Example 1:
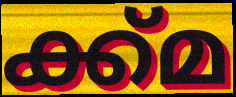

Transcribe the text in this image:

ക്ക്മ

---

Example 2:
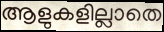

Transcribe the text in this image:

ആളുകളില്ലാതെ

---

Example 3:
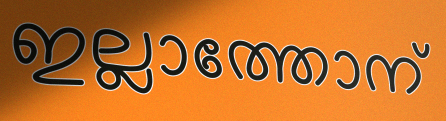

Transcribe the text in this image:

ഇല്ലാത്തോന്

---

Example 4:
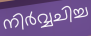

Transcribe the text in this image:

നിർവ്വചിച്ച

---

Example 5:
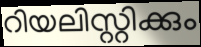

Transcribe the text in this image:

റിയലിസ്റ്റിക്കും